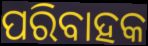
ପରିବାହକ